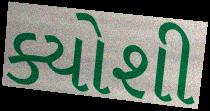
ક્યોશી